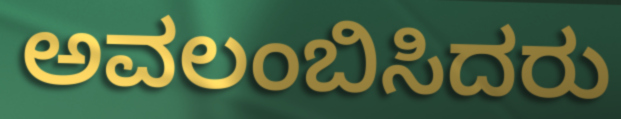
ಅವಲಂಬಿಸಿದರು